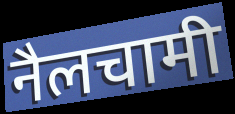
नैलचामी